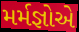
મર્મજ્ઞોએ